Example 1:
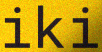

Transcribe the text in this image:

iki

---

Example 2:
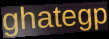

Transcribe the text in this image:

ghategp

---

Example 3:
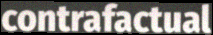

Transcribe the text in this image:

contrafactual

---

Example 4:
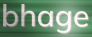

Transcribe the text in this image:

bhage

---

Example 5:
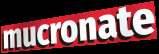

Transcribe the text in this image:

mucronate